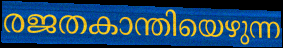
രജതകാന്തിയെഴുന്ന